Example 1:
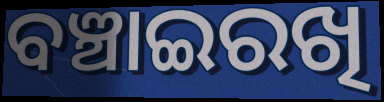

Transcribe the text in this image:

ବଞ୍ଚାଇରଖି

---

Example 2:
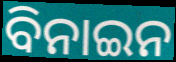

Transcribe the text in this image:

ବିନାଇନ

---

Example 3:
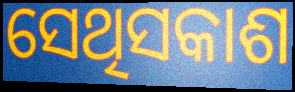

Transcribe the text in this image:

ସେଥିସକାଶ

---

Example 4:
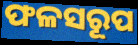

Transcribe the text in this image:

ଫଳସରୂପ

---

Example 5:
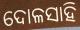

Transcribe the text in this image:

ଦୋଳସାହି